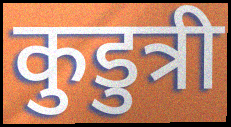
कुडुत्री